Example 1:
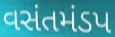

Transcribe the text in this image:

વસંતમંડપ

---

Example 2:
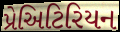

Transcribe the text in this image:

પ્રેઅિટિરિયન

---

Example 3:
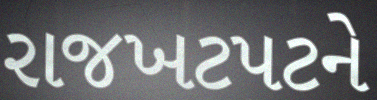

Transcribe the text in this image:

રાજખટપટને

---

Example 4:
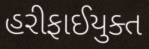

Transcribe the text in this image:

હરીફાઈયુક્ત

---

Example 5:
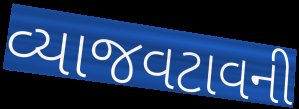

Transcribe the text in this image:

વ્યાજવટાવની